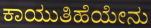
ಕಾಯುತಿಹೆಯೇನು